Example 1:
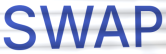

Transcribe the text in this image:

SWAP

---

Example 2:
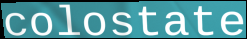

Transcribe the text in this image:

colostate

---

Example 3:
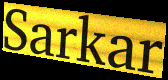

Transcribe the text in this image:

Sarkar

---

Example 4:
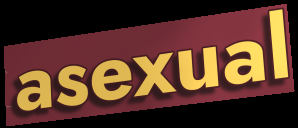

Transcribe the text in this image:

asexual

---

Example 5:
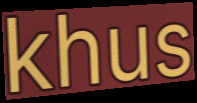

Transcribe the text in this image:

khus